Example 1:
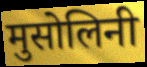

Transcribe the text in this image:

मुसोलिनी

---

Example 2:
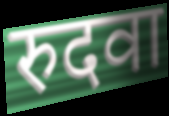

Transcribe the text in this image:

रुदवा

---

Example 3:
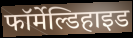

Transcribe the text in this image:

फॉर्मेल्डिहाइड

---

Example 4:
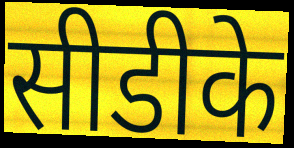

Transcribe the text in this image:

सीडीके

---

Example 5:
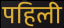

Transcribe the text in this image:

पहिली